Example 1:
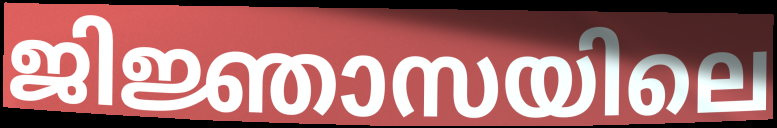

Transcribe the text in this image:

ജിജ്ഞാസയിലെ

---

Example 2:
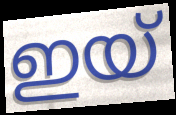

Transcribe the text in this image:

ഇയ്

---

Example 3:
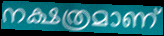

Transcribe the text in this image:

നക്ഷത്രമാണ്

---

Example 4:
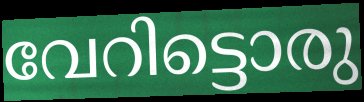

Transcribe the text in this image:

വേറിട്ടൊരു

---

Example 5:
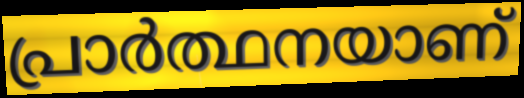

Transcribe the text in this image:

പ്രാർത്ഥനയാണ്